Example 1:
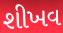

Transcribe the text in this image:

શીખવ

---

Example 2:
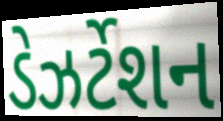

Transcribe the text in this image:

ડેઝર્ટેશન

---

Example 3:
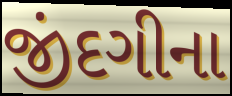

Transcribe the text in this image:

જીંદગીના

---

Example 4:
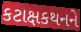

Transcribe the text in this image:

કટાક્ષકથનને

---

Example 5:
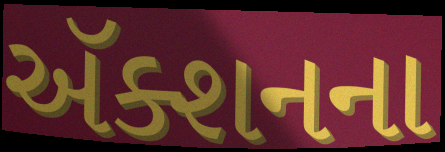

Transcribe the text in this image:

ઍક્શનના